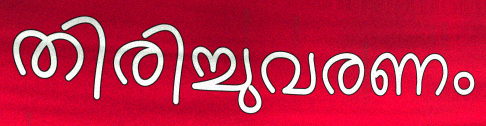
തിരിച്ചുവരണം